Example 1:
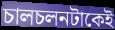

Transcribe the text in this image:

চালচলনটাকেই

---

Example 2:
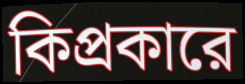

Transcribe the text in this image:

কিপ্রকারে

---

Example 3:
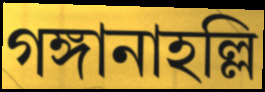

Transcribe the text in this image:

গঙ্গানাহল্লি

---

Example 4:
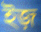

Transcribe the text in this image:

ইজ়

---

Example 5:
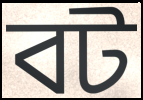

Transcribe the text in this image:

বট